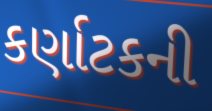
કર્ણાટકની